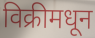
विक्रीमधून